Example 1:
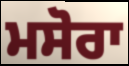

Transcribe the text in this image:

ਮਸੋਰਾ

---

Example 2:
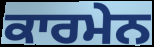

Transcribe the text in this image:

ਕਾਰਮੇਨ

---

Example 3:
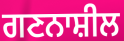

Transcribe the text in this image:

ਗਣਨਾਸ਼ੀਲ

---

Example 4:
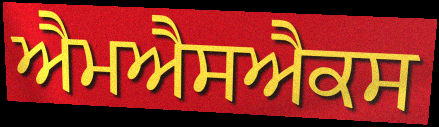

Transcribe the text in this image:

ਐਮਐਸਐਕਸ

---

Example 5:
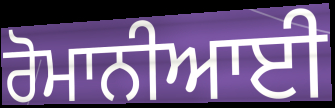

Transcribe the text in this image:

ਰੋਮਾਨੀਆਈ